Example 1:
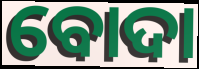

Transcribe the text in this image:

ବୋଦା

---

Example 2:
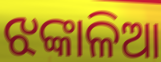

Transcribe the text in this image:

ଝଙ୍କାଳିଆ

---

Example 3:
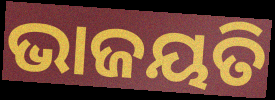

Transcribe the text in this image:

ଭାଜୟତି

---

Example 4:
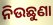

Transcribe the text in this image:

ନିଉଛୁଣା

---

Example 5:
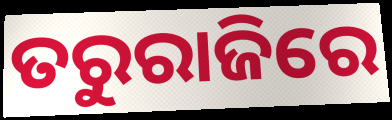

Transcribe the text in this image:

ତରୁରାଜିରେ